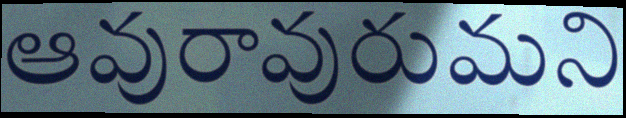
ఆవురావురుమని